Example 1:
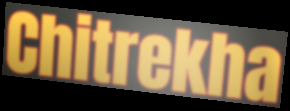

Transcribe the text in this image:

Chitrekha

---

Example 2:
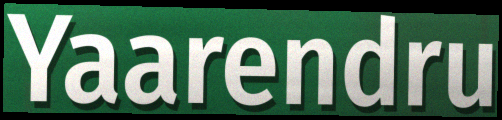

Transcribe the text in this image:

Yaarendru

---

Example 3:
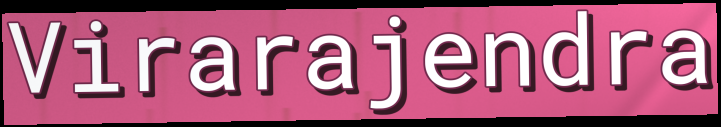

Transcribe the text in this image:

Virarajendra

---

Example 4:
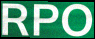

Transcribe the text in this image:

RPO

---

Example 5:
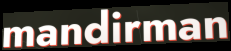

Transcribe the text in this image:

mandirman